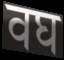
वघ